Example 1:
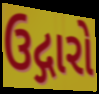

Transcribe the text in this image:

ઉદ્ગારો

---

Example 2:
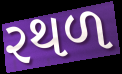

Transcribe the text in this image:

રથળ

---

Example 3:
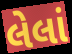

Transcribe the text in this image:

લેલાં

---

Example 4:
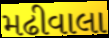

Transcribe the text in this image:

મઢીવાલા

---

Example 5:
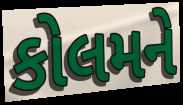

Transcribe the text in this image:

કોલમને